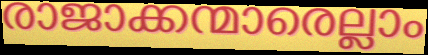
രാജാക്കന്മാരെല്ലാം